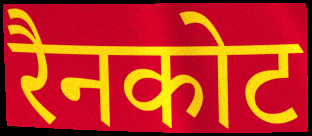
रैनकोट